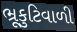
ભ્રૂકુટિવાળી